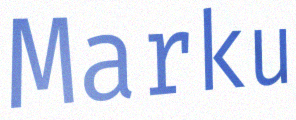
Marku